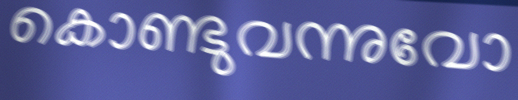
കൊണ്ടുവന്നുവോ